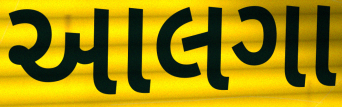
આલગા